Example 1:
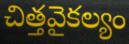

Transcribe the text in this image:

చిత్తవైకల్యం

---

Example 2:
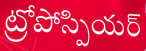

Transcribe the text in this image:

ట్రోపోస్పియర్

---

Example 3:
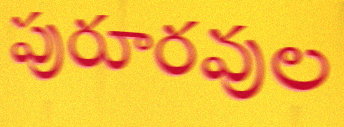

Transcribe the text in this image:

పురూరవుల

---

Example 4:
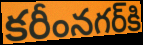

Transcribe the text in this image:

కరీంనగర్‌కి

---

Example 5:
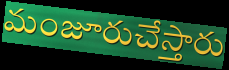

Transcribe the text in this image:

మంజూరుచేస్తారు